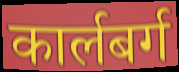
कार्लबर्ग